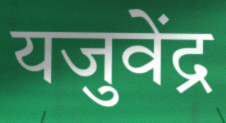
यजुवेंद्र